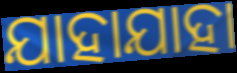
ଯାହାଯାହା